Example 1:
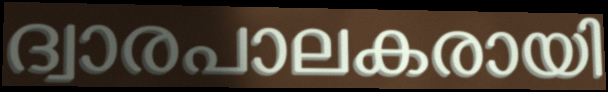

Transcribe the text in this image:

ദ്വാരപാലകരായി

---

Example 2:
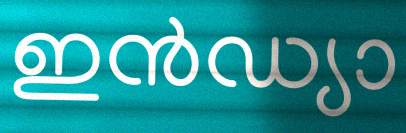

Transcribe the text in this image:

ഇൻഡ്യാ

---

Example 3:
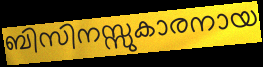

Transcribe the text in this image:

ബിസിനസ്സുകാരനായ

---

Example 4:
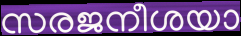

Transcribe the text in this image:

സരജനീശയാ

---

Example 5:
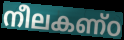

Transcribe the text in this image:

നീലകണ്ഠ